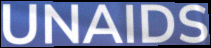
UNAIDS